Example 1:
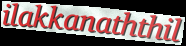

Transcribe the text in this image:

ilakkanaththil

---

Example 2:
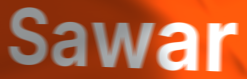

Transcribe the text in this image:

Sawar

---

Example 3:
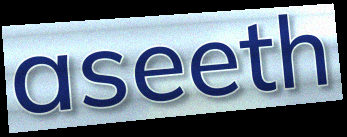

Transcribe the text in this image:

aseeth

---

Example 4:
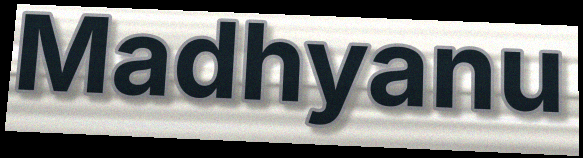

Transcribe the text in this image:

Madhyanu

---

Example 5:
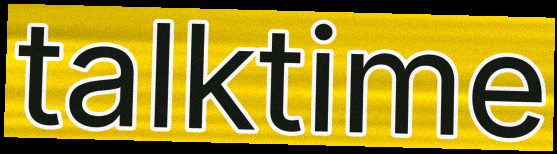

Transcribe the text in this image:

talktime